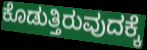
ಕೊಡುತ್ತಿರುವುದಕ್ಕೆ